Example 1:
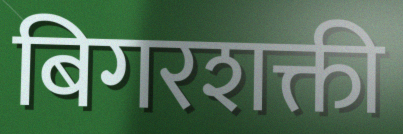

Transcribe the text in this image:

बिगरशक्ती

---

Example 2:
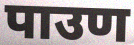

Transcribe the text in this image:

पाउण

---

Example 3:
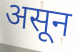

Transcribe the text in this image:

असून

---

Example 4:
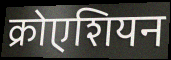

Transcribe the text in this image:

क्रोएशियन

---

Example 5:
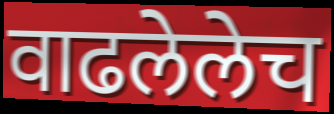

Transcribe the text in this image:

वाढलेलेच